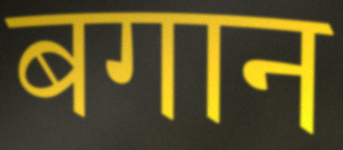
बगान